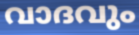
വാദവും